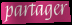
partager